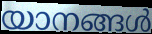
യാനങ്ങൾ